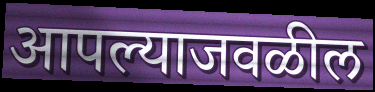
आपल्याजवळील